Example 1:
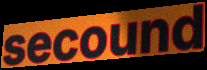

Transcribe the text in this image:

secound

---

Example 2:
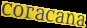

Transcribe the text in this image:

coracana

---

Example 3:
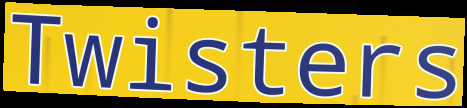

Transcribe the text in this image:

Twisters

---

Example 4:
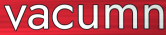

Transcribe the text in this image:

vacumn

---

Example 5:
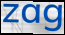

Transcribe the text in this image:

zag